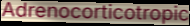
Adrenocorticotropic